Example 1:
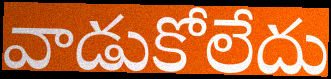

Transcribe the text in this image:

వాడుకోలేదు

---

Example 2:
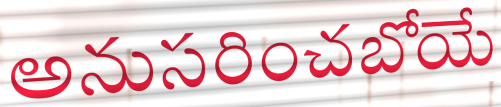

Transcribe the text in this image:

అనుసరించబోయే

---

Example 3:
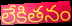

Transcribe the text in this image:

లేకితనం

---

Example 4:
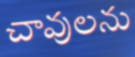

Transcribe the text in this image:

చావులను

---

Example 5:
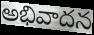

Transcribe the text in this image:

అభివాదన